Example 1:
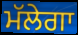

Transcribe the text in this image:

ਮੱਲੇਗਾ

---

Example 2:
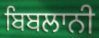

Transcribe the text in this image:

ਬਿਬਲਾਨੀ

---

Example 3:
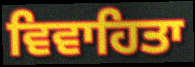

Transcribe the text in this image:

ਵਿਵਾਹਿਤਾ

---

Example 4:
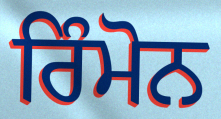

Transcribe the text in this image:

ਰਿੰਮੋਨ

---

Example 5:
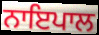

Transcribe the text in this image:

ਨਾਇਪਾਲ